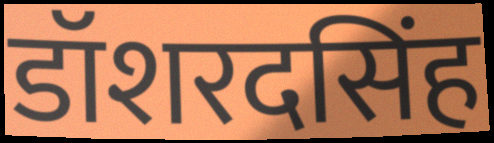
डॉशरदसिंह